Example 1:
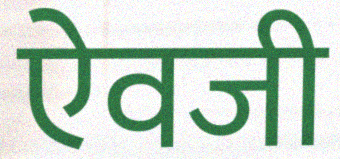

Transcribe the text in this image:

ऐवजी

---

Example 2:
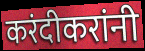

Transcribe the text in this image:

करंदीकरांनी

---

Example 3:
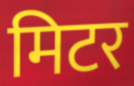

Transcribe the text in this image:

मिटर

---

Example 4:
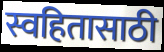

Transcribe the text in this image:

स्वहितासाठी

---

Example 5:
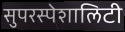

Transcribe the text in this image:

सुपरस्पेशालिटी